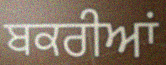
ਬਕਰੀਆਂ